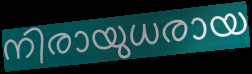
നിരായുധരായ